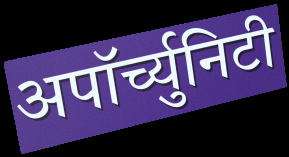
अपॉर्च्युनिटी